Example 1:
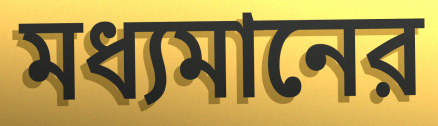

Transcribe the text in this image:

মধ্যমানের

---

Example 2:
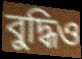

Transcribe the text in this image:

বুদ্ধিও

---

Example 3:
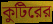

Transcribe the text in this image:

কুটিরের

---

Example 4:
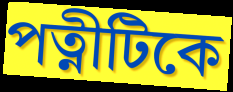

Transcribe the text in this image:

পত্নীটিকে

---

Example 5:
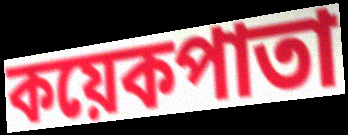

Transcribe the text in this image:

কয়েকপাতা